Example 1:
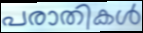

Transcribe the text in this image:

പരാതികൾ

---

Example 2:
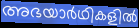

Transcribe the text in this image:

അഭയാർഥികളിൽ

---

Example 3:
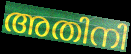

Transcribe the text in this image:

അതിനി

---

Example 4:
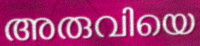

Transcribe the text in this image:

അരുവിയെ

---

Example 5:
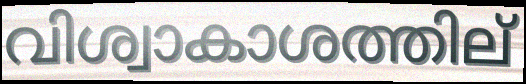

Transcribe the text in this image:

വിശ്വാകാശത്തില്